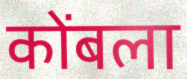
कोंबला